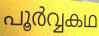
പൂർവ്വകഥ